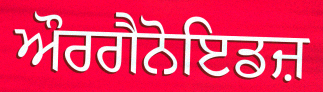
ਔਰਗੈਨੋਇਡਜ਼